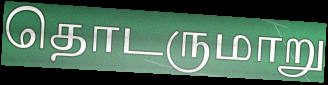
தொடருமாறு